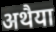
अथैया